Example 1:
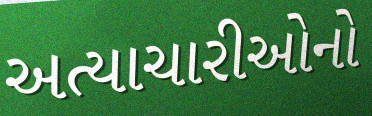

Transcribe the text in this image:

અત્યાચારીઓનો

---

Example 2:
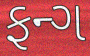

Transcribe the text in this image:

ફન્ગ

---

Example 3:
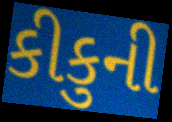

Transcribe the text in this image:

કીકુની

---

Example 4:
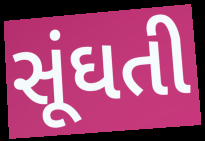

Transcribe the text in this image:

સૂંઘતી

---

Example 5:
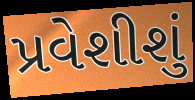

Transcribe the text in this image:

પ્રવેશીશું